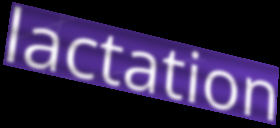
lactation